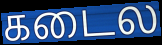
கடைல